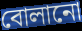
বোলানো